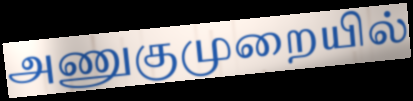
அணுகுமுறையில்